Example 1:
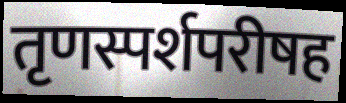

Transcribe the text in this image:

तृणस्पर्शपरीषह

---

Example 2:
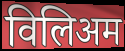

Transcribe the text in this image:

विलिअम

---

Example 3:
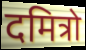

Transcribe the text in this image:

दमित्रो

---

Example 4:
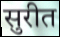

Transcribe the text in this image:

सुरीत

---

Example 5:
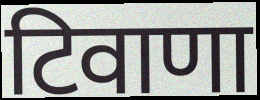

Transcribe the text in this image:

टिवाणा